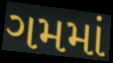
ગમમાં